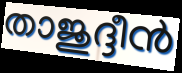
താജുദ്ദീൻ